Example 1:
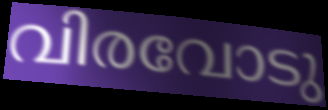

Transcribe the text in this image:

വിരവോടു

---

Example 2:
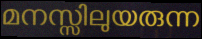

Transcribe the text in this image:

മനസ്സിലുയരുന്ന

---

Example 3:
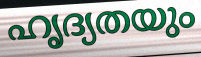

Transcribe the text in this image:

ഹൃദ്യതയും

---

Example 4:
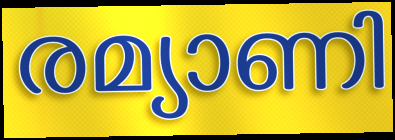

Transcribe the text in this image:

രമ്യാണി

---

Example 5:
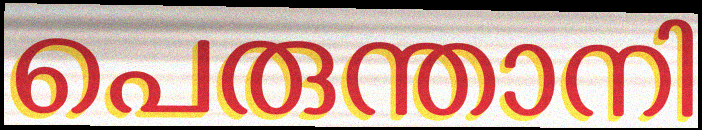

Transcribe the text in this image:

പെരുന്താനി